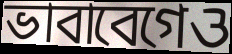
ভাবাবেগেও